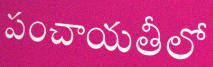
పంచాయతీలో